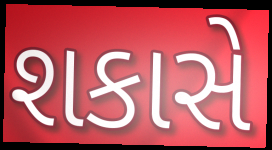
શકાસે